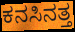
ಕನಸಿನತ್ತ